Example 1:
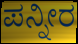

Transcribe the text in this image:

ಪನ್ನೀರ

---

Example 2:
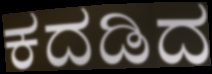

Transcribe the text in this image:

ಕದಡಿದ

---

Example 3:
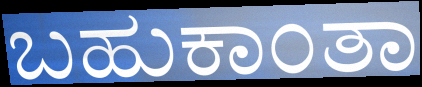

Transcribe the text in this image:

ಬಹುಕಾಂತಾ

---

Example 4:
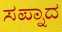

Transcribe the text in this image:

ಸಪ್ನಾದ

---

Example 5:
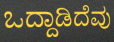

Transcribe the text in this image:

ಒದ್ದಾಡಿದೆವು